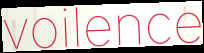
voilence